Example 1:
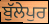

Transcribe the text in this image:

ਬੁੱਲੇਪੁਰ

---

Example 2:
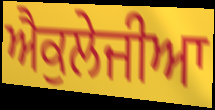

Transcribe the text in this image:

ਐਕੁਲੇਜੀਆ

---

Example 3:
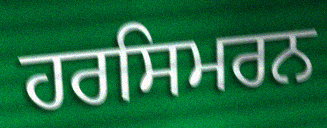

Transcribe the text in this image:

ਹਰਸਿਮਰਨ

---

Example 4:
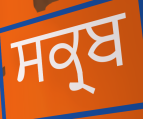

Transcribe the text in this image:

ਸਕ੍ਰਬ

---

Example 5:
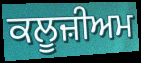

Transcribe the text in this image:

ਕਲੂਜ਼ੀਅਮ